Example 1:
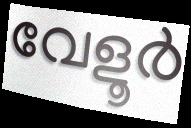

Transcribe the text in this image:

വേളൂർ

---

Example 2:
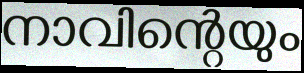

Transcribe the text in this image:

നാവിന്റെയും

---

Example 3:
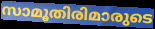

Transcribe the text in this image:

സാമൂതിരിമാരുടെ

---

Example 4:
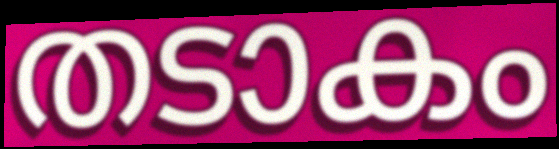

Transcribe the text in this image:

തടാകം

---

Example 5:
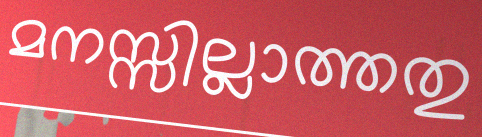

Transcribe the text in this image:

മനസ്സില്ലാത്തതു